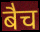
बैच